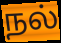
நல்